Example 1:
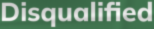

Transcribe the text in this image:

Disqualified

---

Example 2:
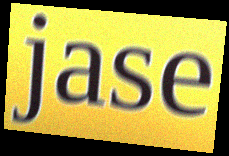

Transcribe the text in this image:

jase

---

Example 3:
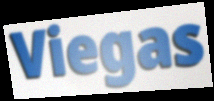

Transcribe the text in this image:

Viegas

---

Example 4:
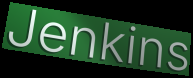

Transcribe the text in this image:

Jenkins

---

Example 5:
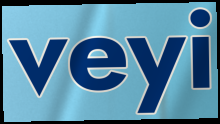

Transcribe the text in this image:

veyi